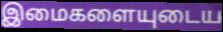
இமைகளையுடைய